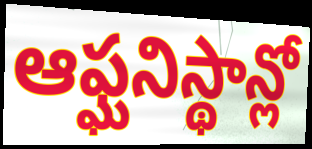
ఆఫ్ఘనిస్థాన్లో